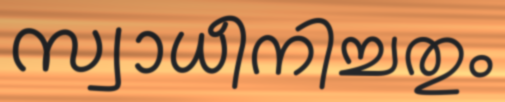
സ്വാധീനിച്ചതും